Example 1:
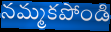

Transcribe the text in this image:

నమ్మకపోండి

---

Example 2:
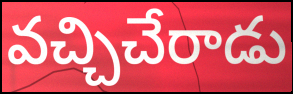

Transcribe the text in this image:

వచ్చిచేరాడు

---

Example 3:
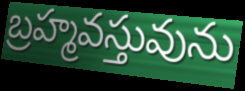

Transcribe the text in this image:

బ్రహ్మవస్తువును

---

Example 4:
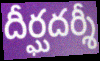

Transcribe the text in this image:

దీర్ఘదర్శీ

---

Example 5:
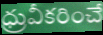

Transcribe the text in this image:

ధ్రువీకరించే